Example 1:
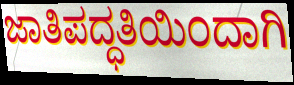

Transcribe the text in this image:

ಜಾತಿಪದ್ಧತಿಯಿಂದಾಗಿ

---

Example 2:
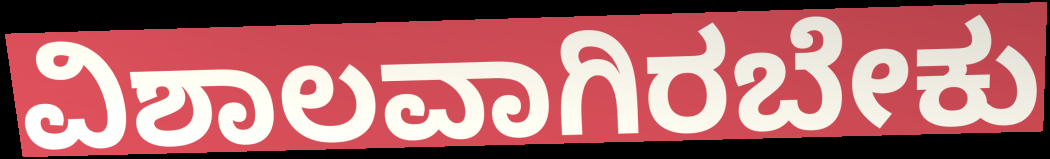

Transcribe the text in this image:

ವಿಶಾಲವಾಗಿರಬೇಕು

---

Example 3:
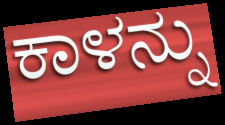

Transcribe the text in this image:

ಕಾಳನ್ನು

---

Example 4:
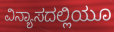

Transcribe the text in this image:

ವಿನ್ಯಾಸದಲ್ಲಿಯೂ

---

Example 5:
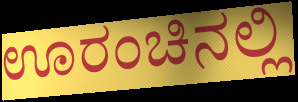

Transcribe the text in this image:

ಊರಂಚಿನಲ್ಲಿ